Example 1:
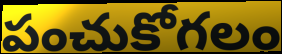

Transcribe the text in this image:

పంచుకోగలం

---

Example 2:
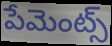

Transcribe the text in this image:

పేమెంట్స్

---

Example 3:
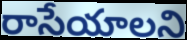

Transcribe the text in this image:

రాసేయాలని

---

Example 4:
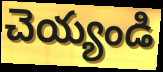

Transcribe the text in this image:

చెయ్యండి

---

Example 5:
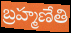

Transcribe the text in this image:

బ్రహ్మణేతి